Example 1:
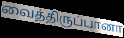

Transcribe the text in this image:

வைத்திருப்பானா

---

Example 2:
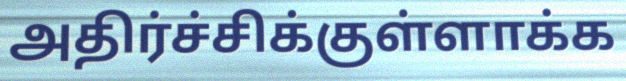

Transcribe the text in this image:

அதிர்ச்சிக்குள்ளாக்க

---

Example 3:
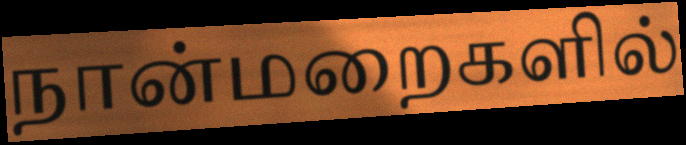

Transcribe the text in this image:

நான்மறைகளில்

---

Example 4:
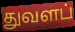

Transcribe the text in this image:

துவளப்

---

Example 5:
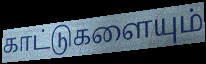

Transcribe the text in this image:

காட்டுகளையும்